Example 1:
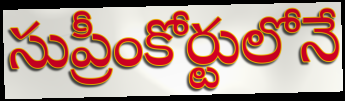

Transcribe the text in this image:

సుప్రీంకోర్టులోనే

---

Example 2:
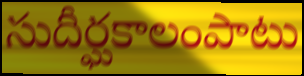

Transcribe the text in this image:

సుదీర్ఘకాలంపాటు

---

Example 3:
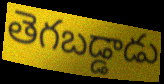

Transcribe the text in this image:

తెగబడ్డాడు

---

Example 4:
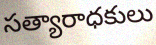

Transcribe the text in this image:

సత్యారాధకులు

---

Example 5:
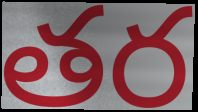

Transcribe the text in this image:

తర